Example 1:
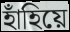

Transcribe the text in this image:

হাঁহিয়ে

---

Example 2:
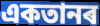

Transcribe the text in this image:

একতানৰ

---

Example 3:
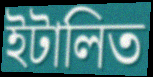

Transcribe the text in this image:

ইটালিত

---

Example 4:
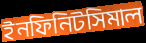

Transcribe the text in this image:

ইনফিনিটসিমাল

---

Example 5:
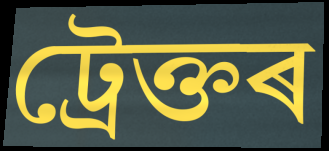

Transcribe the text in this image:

ট্ৰেক্তৰ